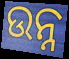
ଉନ୍ନ